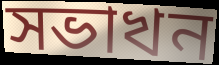
সভাখন